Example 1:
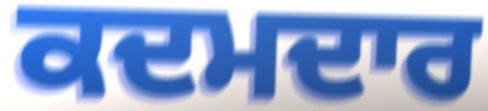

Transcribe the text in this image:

ਕਦਮਦਾਰ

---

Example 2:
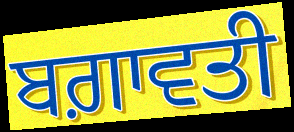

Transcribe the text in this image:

ਬਗ਼ਾਵਤੀ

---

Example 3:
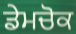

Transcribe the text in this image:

ਡੇਮਚੋਕ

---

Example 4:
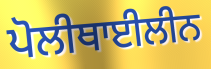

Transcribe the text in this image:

ਪੋਲੀਥਾਈਲੀਨ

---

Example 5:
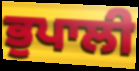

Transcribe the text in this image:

ਭੁਪਾਲੀ